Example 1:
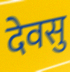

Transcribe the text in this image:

देवसु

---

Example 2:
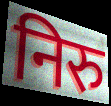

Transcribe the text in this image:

निरु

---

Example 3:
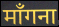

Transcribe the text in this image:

माँगना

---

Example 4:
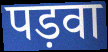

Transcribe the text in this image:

पड़वा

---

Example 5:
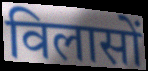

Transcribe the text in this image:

विलासों